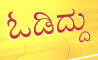
ಓಡಿದ್ದು